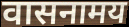
वासनामय